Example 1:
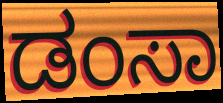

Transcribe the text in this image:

ಡಂಸಾ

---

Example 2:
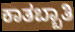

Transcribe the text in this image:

ಕಾತಬ್ಬಾತಿ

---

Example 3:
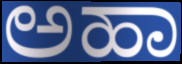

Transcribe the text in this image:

ಅಹಾ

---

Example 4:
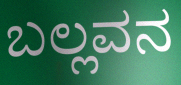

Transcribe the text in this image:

ಬಲ್ಲವನ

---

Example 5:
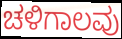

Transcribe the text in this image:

ಚಳಿಗಾಲವು